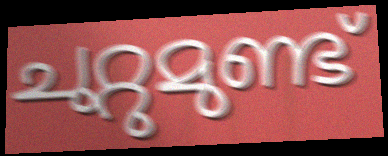
ചുറ്റുമുണ്ട്